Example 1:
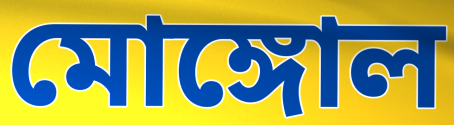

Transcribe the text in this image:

মোঙ্গোল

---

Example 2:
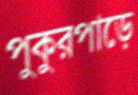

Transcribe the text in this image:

পুকুরপাড়ে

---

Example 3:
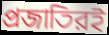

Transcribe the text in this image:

প্রজাতিরই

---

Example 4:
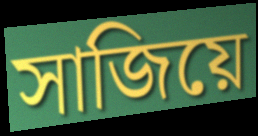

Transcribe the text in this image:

সাজিয়ে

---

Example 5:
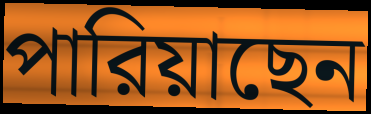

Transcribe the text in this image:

পারিয়াছেন